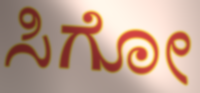
ಸಿಗೋ